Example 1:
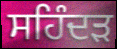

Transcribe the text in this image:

ਸਹਿੰਦੜ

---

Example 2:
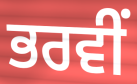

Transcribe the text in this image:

ਭਰਵੀਂ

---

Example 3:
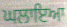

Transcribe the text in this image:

ਘਲਾਇਆ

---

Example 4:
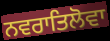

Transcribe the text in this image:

ਨਵਰਾਤਿਲੋਵਾ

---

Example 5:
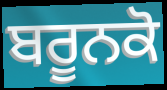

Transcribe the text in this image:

ਬਰੂਨਕੋ